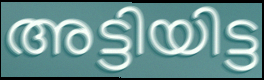
അട്ടിയിട്ട